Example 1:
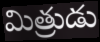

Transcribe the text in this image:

మిత్రుడు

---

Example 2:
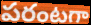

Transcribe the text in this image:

పరంటగా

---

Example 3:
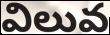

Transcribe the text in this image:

విలువ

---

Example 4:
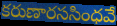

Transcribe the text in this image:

కరుణారససింధవే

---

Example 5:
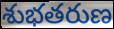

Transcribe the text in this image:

శుభతరుణ